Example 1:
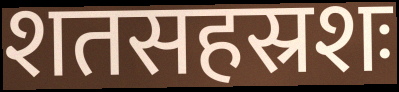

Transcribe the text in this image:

शतसहस्रशः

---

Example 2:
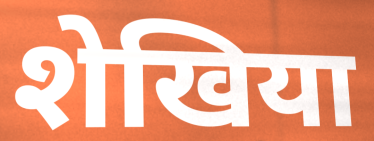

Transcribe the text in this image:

शेखिया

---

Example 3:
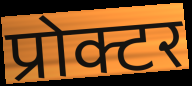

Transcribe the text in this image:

प्रोक्टर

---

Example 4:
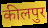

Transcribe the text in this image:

कीलपुर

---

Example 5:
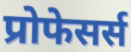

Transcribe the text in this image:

प्रोफेसर्स